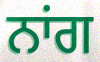
ਨਾਂਗ